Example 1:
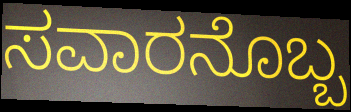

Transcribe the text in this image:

ಸವಾರನೊಬ್ಬ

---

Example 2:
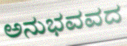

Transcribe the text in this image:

ಅನುಭವವದ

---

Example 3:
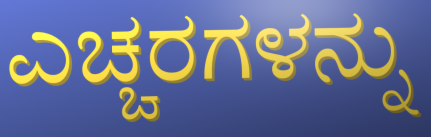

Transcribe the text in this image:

ಎಚ್ಚರಗಳನ್ನು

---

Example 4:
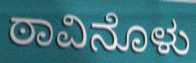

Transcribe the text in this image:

ಠಾವಿನೊಳು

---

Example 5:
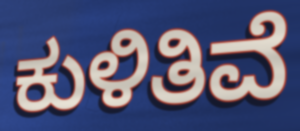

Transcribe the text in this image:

ಕುಳಿತಿವೆ